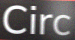
Circ